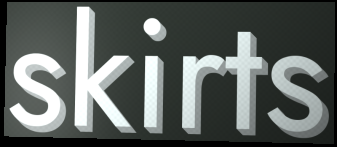
skirts